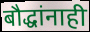
बौद्धांनाही